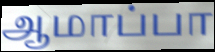
ஆமாப்பா